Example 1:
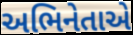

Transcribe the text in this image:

અભિનેતાએ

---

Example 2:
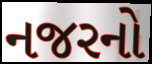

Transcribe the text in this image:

નજરનો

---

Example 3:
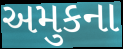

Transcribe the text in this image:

અમુકના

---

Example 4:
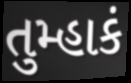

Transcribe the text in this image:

તુમ્હાકં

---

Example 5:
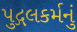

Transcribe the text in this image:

પુદ્ગલકર્મનું